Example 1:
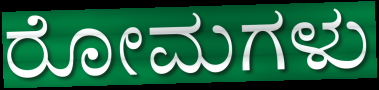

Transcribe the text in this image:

ರೋಮಗಳು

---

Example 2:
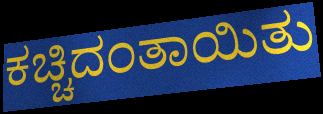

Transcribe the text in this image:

ಕಚ್ಚಿದಂತಾಯಿತು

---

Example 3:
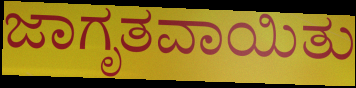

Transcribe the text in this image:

ಜಾಗೃತವಾಯಿತು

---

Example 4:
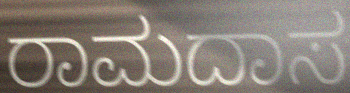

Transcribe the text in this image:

ರಾಮದಾಸ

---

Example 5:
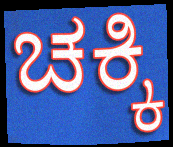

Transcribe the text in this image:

ಚಕ್ಕಿ